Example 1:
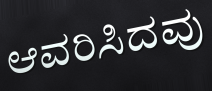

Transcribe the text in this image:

ಆವರಿಸಿದವು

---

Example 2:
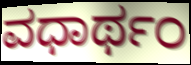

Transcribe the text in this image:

ವಧಾರ್ಥಂ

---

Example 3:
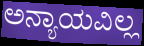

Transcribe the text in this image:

ಅನ್ಯಾಯವಿಲ್ಲ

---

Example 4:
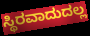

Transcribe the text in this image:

ಸ್ಥಿರವಾದುದಲ್ಲ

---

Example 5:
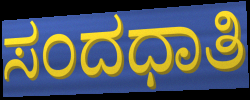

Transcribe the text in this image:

ಸಂದಧಾತಿ